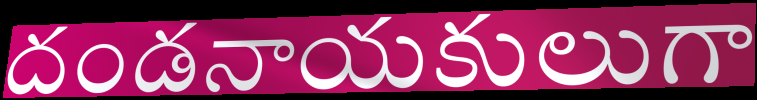
దండనాయకులుగా